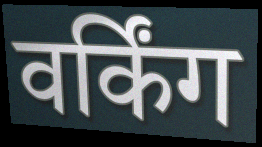
वर्किंग